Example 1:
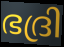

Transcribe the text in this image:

ഭദ്രി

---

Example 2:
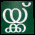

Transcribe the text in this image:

യ്ക്ക്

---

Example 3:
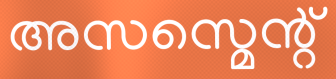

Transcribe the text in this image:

അസസ്മെന്റ്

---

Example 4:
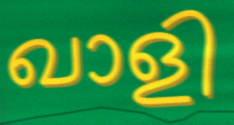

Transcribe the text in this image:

ഖാളി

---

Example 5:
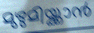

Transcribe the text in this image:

മുഴുമിയ്ക്കാൻ